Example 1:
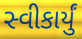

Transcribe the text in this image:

સ્વીકાર્યું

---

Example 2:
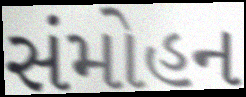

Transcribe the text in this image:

સંમોહન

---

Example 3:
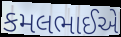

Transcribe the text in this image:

કમલભાઈએ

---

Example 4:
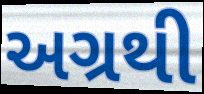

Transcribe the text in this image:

અગ્રથી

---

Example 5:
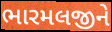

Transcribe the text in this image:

ભારમલજીને